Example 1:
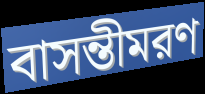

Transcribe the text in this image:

বাসন্তীমরণ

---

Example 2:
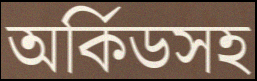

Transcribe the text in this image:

অর্কিডসহ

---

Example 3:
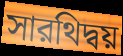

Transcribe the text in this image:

সারথিদ্বয়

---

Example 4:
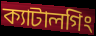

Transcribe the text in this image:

ক্যাটালগিং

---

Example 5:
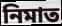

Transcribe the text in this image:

নিমাত